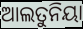
ଆଲତୁନିୟା